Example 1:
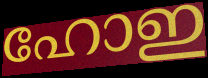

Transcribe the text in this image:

ഹോഇ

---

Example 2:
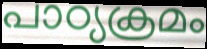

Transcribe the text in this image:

പാഠ്യക്രമം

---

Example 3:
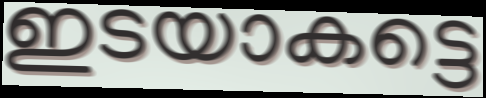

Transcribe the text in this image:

ഇടയാകട്ടെ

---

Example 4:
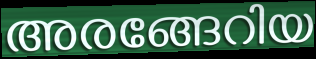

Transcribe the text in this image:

അരങ്ങേറിയ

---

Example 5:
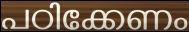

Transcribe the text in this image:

പഠിക്കേണം